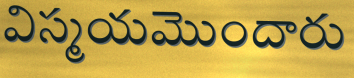
విస్మయమొందారు